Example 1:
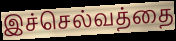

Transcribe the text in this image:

இச்செல்வத்தை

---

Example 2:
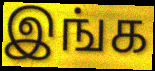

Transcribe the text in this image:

இங்க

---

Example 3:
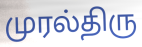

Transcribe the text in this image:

முரல்திரு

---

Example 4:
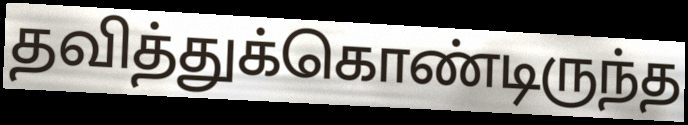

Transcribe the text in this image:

தவித்துக்கொண்டிருந்த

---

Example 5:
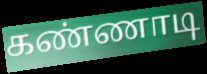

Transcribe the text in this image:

கண்ணாடி